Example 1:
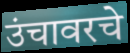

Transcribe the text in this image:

उंचावरचे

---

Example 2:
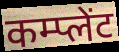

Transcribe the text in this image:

कम्प्लेंट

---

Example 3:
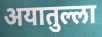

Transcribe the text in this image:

अयातुल्ला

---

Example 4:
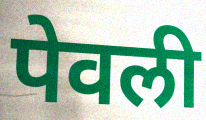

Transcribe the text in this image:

पेवली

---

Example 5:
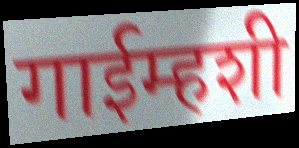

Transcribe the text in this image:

गाईम्हशी